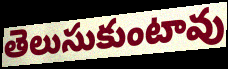
తెలుసుకుంటావు